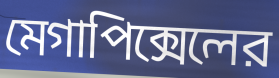
মেগাপিক্সেলের